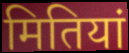
मितियां